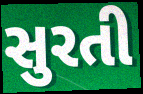
સુરતી